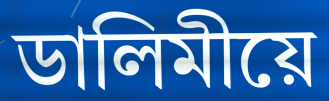
ডালিমীয়ে